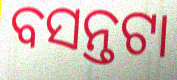
ବସନ୍ତଟା